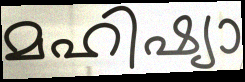
മഹിഷ്യാ